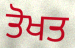
ਤੋਖਤ